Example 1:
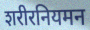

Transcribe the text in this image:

शरीरनियमन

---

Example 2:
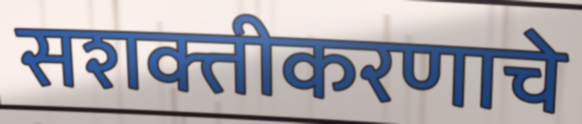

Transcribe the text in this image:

सशक्तीकरणाचे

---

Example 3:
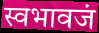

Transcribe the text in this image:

स्वभावजं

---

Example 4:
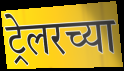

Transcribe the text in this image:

ट्रेलरच्या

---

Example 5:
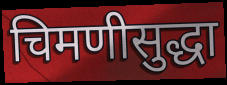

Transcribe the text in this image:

चिमणीसुद्धा